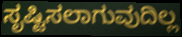
ಸೃಷ್ಟಿಸಲಾಗುವುದಿಲ್ಲ